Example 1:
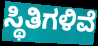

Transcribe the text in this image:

ಸ್ಥಿತಿಗಳಿವೆ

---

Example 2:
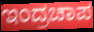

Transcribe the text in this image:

ಇಂದ್ರಚಾಪ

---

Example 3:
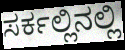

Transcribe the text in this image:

ಸರ್ಕಲ್ಲಿನಲ್ಲಿ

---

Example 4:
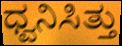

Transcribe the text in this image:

ಧ್ವನಿಸಿತ್ತು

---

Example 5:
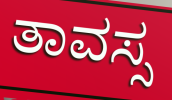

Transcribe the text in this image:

ತಾವಸ್ಸ